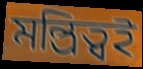
মন্ত্রিত্বই